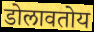
डोलावतोय